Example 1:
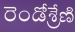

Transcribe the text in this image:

రెండోశ్రేణి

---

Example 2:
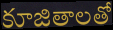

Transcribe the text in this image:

కూజితాలతో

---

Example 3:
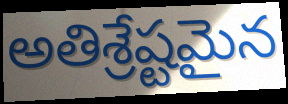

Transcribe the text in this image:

అతిశ్రేష్టమైన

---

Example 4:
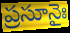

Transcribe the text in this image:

ప్రసూనైః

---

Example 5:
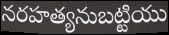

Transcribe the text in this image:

నరహత్యనుబట్టియు